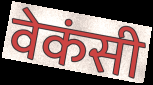
वेकंसी